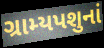
ગ્રામ્યપશુનાં